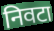
निवटा